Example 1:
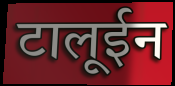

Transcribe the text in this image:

टालूईन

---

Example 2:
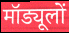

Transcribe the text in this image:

मॉड्यूलों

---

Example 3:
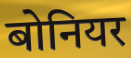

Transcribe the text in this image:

बोनियर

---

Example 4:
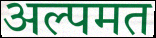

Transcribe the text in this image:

अल्पमत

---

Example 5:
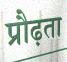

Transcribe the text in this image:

प्रौढ़ता